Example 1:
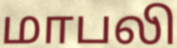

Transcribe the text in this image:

மாபலி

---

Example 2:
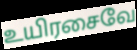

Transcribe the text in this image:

உயிரசைவே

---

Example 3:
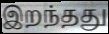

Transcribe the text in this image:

இறந்தது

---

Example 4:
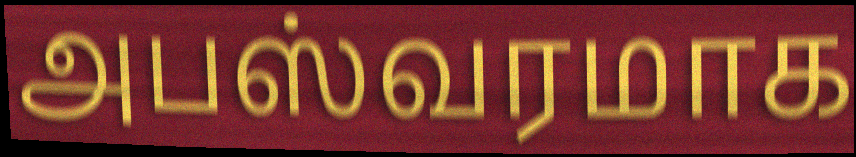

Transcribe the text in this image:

அபஸ்வரமாக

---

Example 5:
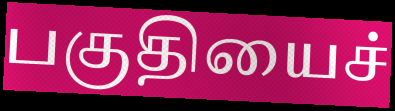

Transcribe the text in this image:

பகுதியைச்